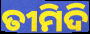
ତୀମିଦି